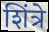
शिंत्रे